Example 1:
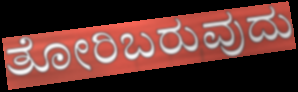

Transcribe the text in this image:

ತೋರಿಬರುವುದು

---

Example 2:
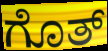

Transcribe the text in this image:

ಗೊತ್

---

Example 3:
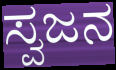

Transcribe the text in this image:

ಸ್ವಜನ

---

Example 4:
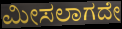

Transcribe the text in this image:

ಮೀಸಲಾಗದೇ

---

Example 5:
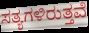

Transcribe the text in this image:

ಸತ್ಯಗಳಿರುತ್ತವೆ